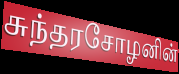
சுந்தரசோழனின்